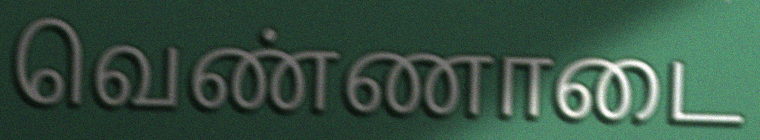
வெண்ணாடை